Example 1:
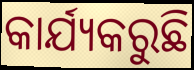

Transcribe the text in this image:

କାର୍ଯ୍ୟକରୁଛି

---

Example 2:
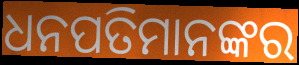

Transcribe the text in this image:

ଧନପତିମାନଙ୍କର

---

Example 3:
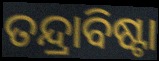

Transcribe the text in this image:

ତନ୍ଦ୍ରାବିଷ୍ଟା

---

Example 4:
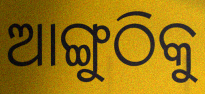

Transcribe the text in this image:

ଆଙ୍ଗୁଠିକୁ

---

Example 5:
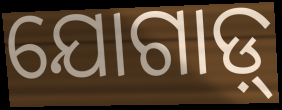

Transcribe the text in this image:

ଯୋଗାଡ଼୍